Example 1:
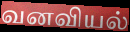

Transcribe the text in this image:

வனவியல்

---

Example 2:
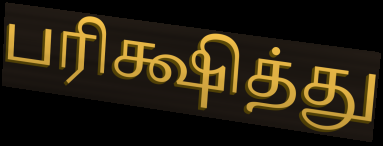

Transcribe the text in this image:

பரிக்ஷித்து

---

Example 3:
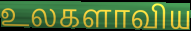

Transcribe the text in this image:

உலகளாவிய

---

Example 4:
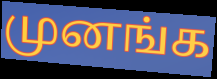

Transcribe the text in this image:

முனங்க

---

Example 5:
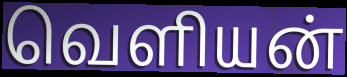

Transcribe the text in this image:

வெளியன்